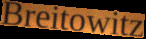
Breitowitz